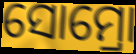
ସୋମ୍ରୋ